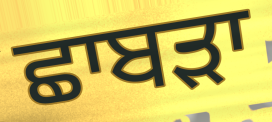
ਛਾਬੜਾ